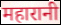
महारानी